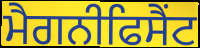
ਮੈਗਨੀਫਿਸੈਂਟ